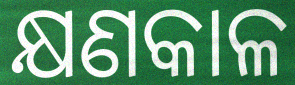
କ୍ଷଣକାଳ